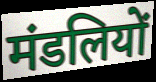
मंडलियों